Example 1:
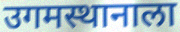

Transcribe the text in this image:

उगमस्थानाला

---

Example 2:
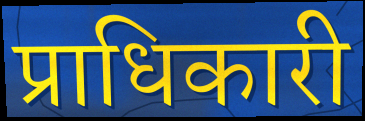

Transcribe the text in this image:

प्राधिकारी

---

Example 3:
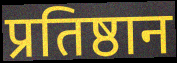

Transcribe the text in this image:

प्रतिष्ठान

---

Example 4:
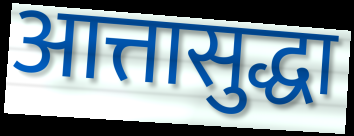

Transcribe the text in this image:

आत्तासुद्धा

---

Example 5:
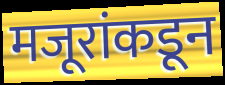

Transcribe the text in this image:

मजूरांकडून